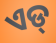
ଏଡ୍